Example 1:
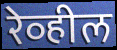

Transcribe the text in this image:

रेव्हील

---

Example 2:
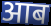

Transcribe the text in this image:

आब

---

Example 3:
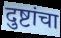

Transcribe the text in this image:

दुष्टांचा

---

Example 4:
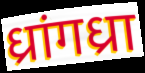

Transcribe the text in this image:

ध्रांगध्रा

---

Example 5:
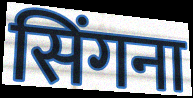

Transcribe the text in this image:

सिंगना